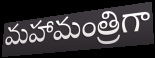
మహామంత్రిగా